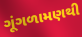
ગૂંગળામણથી